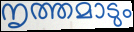
നൃത്തമാടും